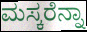
ಮಸ್ಕರೆನ್ನಾ